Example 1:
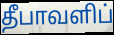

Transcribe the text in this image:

தீபாவளிப்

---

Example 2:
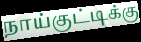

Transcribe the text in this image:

நாய்குட்டிக்கு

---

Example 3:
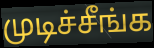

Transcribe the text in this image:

முடிச்சீங்க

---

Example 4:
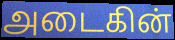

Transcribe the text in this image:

அடைகின்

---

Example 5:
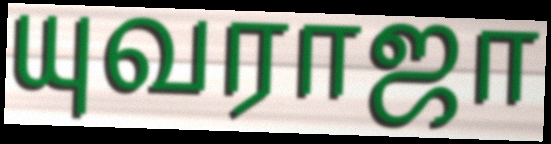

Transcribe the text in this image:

யுவராஜா